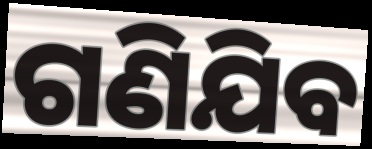
ଗଣିଯିବ